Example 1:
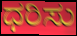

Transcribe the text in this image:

ಧರಿಸು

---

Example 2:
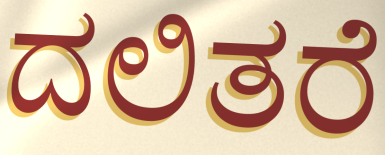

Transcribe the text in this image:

ದಲಿತರೆ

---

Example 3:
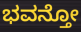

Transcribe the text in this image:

ಭವನ್ತೋ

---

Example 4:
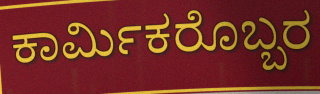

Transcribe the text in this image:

ಕಾರ್ಮಿಕರೊಬ್ಬರ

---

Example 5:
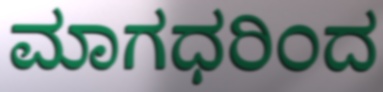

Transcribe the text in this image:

ಮಾಗಧರಿಂದ